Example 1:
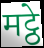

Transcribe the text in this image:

मट्ठे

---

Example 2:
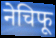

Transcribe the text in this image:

नेचिफू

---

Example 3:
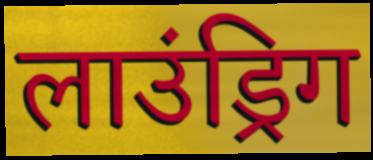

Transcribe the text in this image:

लाउंड्रिग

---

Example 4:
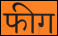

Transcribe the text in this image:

फीग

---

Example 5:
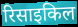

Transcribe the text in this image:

रिसाइकिल